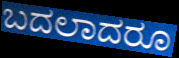
ಬದಲಾದರೂ